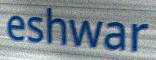
eshwar